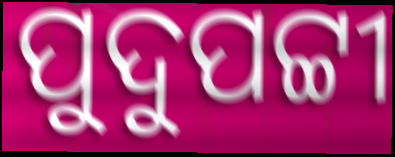
ପୁଦୁପଟ୍ଟୀ